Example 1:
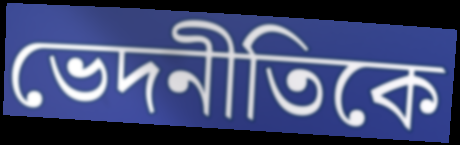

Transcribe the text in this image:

ভেদনীতিকে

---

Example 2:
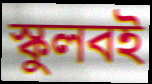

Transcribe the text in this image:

স্কুলবই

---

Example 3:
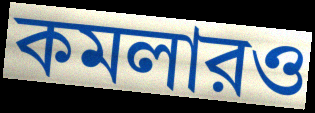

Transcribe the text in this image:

কমলারও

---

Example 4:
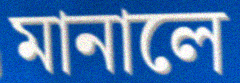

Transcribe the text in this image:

মানালে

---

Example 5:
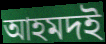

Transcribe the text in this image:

আহমদই